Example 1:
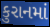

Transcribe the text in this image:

કુરાનમાં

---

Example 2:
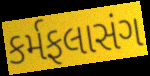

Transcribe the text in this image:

કર્મફલાસંગ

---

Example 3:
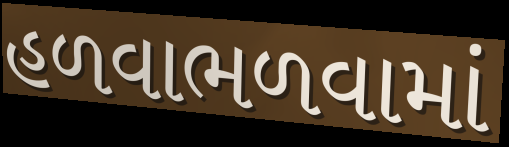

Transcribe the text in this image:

હળવાભળવામાં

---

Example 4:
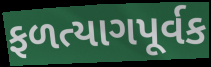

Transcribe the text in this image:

ફળત્યાગપૂર્વક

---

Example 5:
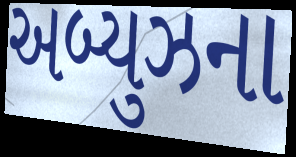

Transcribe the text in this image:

અબ્યુઝના